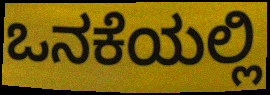
ಒನಕೆಯಲ್ಲಿ